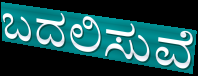
ಬದಲಿಸುವೆ